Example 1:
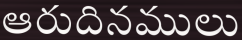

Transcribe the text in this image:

ఆరుదినములు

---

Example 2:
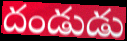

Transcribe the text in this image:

దండుడు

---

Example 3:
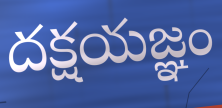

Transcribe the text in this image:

దక్షయజ్ఞం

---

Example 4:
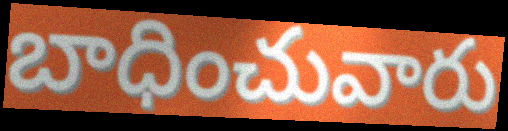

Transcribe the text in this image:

బాధించువారు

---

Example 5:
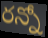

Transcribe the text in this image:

రన్నో